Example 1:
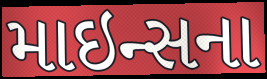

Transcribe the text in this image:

માઇન્સના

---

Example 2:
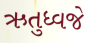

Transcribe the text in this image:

ઋતુધ્વજે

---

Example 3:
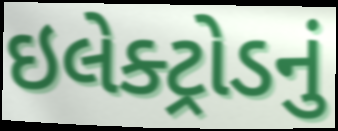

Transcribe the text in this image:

ઇલેક્ટ્રોડનું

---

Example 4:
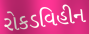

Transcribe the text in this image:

રોકડવિહીન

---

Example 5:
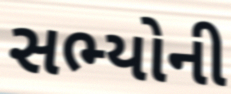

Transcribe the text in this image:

સભ્યોની